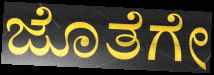
ಜೊತೆಗೇ